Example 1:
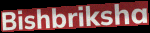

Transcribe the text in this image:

Bishbriksha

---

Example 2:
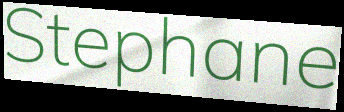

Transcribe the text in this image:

Stephane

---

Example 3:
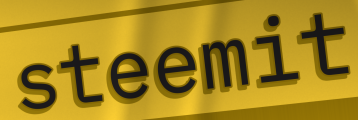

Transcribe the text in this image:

steemit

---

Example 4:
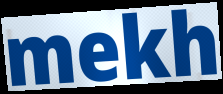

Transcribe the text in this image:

mekh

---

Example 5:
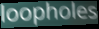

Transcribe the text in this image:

loopholes